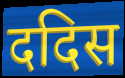
ददिस